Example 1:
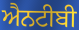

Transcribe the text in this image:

ਐਨਟੀਬੀ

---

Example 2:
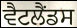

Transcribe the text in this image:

ਵੈਟਲੈਂਡਸ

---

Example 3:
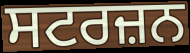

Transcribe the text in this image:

ਸਟਰਜ਼ਨ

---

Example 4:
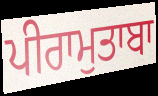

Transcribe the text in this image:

ਪੀਰਾਮੁਤਾਬਾ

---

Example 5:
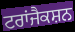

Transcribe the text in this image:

ਟਰਾਂਜੈਕਸ਼ਨ